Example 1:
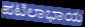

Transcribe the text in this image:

ಪಟಿಲಾಭಾಯ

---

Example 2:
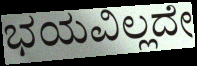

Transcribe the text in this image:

ಭಯವಿಲ್ಲದೇ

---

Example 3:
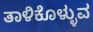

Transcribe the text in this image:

ತಾಳಿಕೊಳ್ಳುವ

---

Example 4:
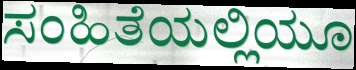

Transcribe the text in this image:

ಸಂಹಿತೆಯಲ್ಲಿಯೂ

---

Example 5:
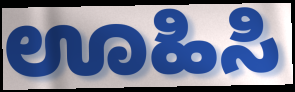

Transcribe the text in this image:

ಊಹಿಸಿ